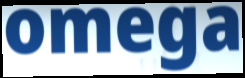
omega